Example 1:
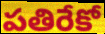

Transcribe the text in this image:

పతిరేకో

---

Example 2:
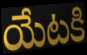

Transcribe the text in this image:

యేటకి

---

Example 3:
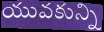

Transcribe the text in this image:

యువకున్ని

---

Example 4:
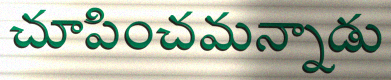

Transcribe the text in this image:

చూపించమన్నాడు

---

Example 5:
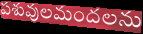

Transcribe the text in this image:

పశువులమందలను